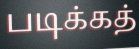
படிக்கத்